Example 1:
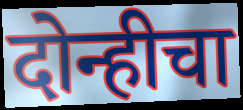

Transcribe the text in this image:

दोन्हीचा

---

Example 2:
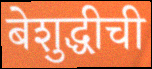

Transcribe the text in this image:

बेशुद्धीची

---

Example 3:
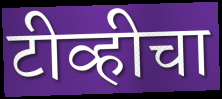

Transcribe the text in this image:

टीव्हीचा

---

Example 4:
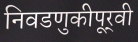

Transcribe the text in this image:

निवडणुकीपूर्वी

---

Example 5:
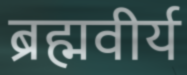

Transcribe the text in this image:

ब्रह्मवीर्य